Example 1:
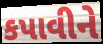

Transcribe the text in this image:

કપાવીને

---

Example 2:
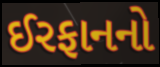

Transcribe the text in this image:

ઈરફાનનો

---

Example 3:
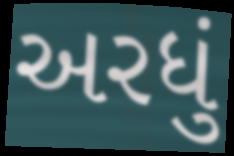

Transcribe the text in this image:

અરધું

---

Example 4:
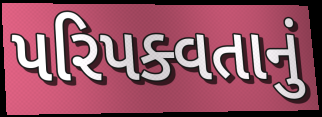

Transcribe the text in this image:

પરિપક્વતાનું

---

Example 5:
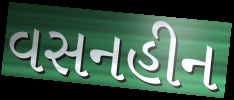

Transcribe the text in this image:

વસનહીન